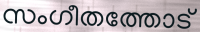
സംഗീതത്തോട്